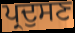
ਪ੍ਰਦੁਸਣ